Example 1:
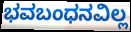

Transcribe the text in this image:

ಭವಬಂಧನವಿಲ್ಲ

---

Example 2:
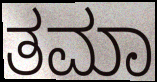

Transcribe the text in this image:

ತಮಾ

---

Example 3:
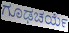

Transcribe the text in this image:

ಗೂಢಚರ್ಯೆ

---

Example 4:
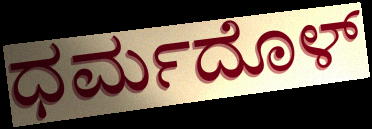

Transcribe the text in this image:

ಧರ್ಮದೊಳ್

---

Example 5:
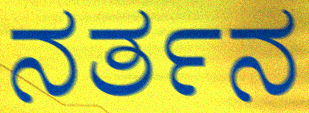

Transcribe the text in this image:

ನರ್ತನ